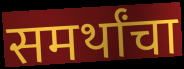
समर्थांचा